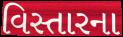
વિસ્તારના